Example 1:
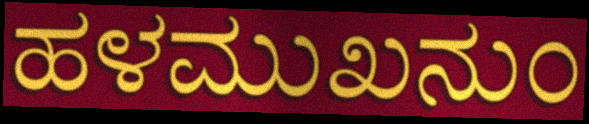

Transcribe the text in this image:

ಹಳಮುಖನುಂ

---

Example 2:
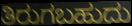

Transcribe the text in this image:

ತಿರುಗಬಹುದು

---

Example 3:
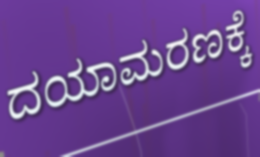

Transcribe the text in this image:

ದಯಾಮರಣಕ್ಕೆ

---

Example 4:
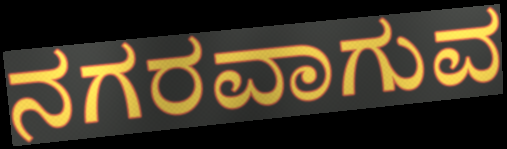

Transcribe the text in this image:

ನಗರವಾಗುವ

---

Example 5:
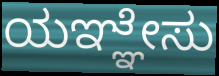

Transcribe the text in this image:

ಯಞ್ಞೇಸು